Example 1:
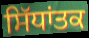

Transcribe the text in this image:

ਸਿੱਧਾਂਤਕ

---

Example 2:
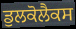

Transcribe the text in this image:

ਡੁਲਕੋਲੈਕਸ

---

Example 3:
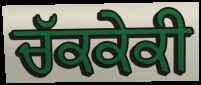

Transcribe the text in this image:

ਚੱਕਕੇਕੀ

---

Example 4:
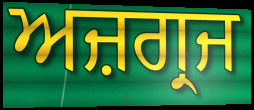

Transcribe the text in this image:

ਅਜ਼ਗ੍ਰਜ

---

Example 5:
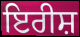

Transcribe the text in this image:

ਇਰੀਸ਼